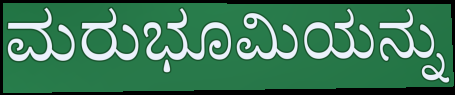
ಮರುಭೂಮಿಯನ್ನು